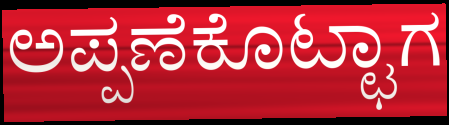
ಅಪ್ಪಣೆಕೊಟ್ಟಾಗ